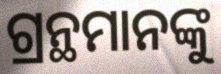
ଗ୍ରନ୍ଥମାନଙ୍କୁ